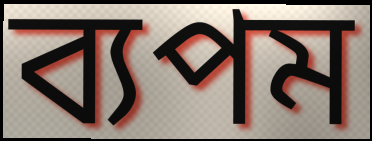
ব্যপম